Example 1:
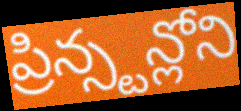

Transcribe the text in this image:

ప్రిన్స్టన్లోని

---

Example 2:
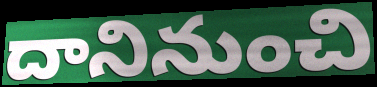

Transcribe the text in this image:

దానినుంచి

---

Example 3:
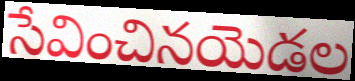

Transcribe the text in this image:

సేవించినయెడల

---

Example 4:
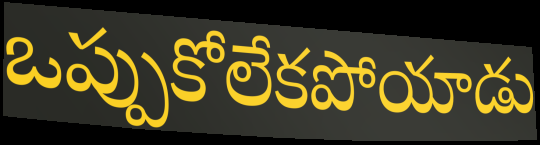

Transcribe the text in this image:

ఒప్పుకోలేకపోయాడు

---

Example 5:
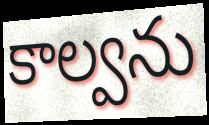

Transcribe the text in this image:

కాల్వను